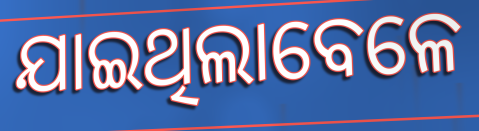
ଯାଇଥିଲାବେଳେ